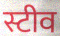
स्टीव